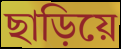
ছাড়িয়ে